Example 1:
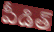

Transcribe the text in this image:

పీడిత్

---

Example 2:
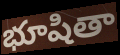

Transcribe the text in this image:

భూషితా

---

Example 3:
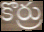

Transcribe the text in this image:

కొర్రు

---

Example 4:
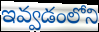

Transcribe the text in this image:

ఇవ్వడంలోని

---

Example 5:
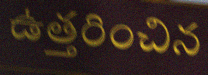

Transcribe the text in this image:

ఉత్తరించిన